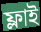
ফ্লাই